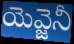
యెవ్జెనీ